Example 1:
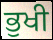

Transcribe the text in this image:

ਭੁਖੀ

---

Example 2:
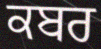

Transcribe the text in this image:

ਕਬਰ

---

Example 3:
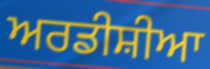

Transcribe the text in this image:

ਅਰਡੀਸ਼ੀਆ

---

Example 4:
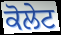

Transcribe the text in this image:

ਕੋਲੇਟ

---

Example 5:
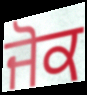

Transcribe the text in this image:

ਜੋਕ